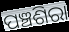
ପଞ୍ଚଶିରା